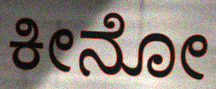
ಕೀನೋ